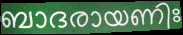
ബാദരായണിഃ